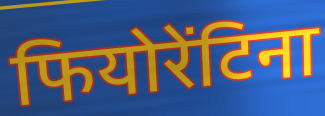
फियोरेंटिना